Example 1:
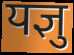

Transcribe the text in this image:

यज्ञु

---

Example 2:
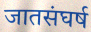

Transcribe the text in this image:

जातसंघर्ष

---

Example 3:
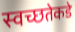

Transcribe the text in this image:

स्वच्छतेकडे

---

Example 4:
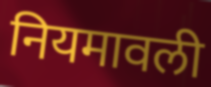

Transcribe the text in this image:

नियमावली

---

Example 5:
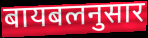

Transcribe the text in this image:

बायबलनुसार